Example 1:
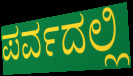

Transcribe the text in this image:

ಪರ್ವದಲ್ಲಿ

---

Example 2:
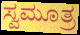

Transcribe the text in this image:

ಸ್ವಮೂತ್ರ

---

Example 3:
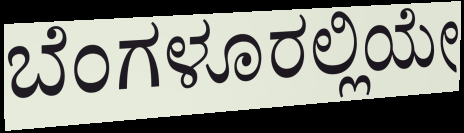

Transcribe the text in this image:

ಬೆಂಗಳೂರಲ್ಲಿಯೇ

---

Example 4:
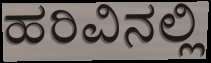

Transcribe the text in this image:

ಹರಿವಿನಲ್ಲಿ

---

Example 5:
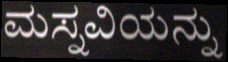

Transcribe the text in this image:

ಮಸ್ನವಿಯನ್ನು